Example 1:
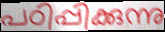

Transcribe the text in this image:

പഠിപ്പിക്കുന്നു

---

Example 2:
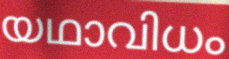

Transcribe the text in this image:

യഥാവിധം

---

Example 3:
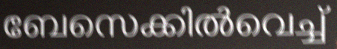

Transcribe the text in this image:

ബേസെക്കിൽവെച്ച്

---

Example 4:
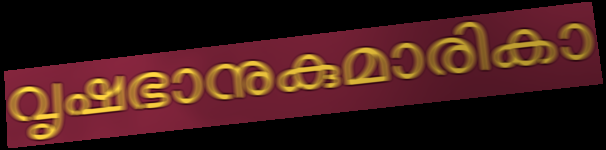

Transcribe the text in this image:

വൃഷഭാനുകുമാരികാ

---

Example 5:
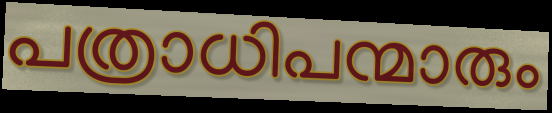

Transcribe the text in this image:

പത്രാധിപന്മാരും